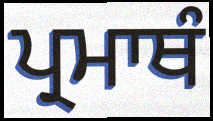
ਪ੍ਰਮਾਥੰ